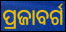
ପ୍ରଜାବର୍ଗ